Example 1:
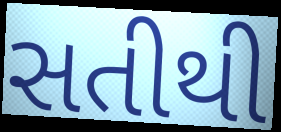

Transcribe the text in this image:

સતીથી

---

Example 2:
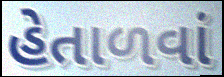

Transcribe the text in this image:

હેતાળવાં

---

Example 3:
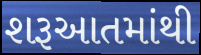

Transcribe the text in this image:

શરૂઆતમાંથી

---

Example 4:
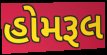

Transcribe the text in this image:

હોમરૂલ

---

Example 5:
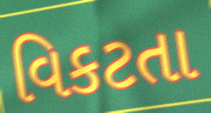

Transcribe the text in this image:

વિકટતા